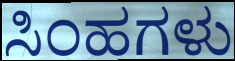
ಸಿಂಹಗಳು